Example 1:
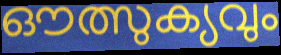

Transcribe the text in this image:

ഔത്സുക്യവും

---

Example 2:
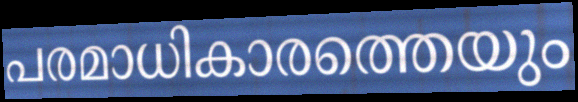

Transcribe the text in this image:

പരമാധികാരത്തെയും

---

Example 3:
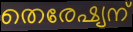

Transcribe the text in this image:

തെരേഷ്യന്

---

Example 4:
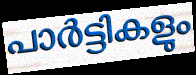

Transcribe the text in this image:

പാർട്ടികളും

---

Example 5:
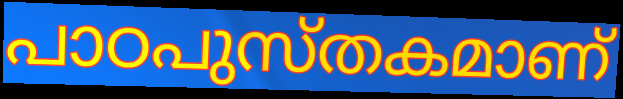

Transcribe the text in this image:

പാഠപുസ്തകമാണ്